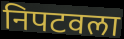
निपटवला